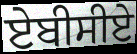
ਏਬੀਸੀਏ